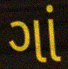
ગાં